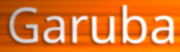
Garuba